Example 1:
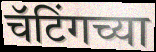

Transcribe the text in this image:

चॅटिंगच्या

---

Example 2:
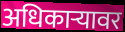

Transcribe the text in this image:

अधिकार्‍यावर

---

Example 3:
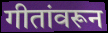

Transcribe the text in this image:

गीतांवरून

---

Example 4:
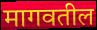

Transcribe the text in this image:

मागवतील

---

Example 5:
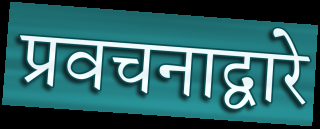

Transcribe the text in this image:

प्रवचनाद्वारे